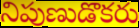
నిపుణుడొకరు